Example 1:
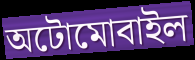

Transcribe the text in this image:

অটোমোবাইল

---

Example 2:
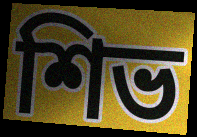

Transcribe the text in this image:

শিভ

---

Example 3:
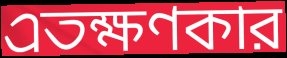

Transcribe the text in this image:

এতক্ষণকার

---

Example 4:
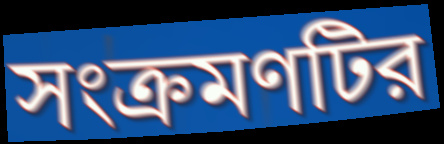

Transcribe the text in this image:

সংক্রমণটির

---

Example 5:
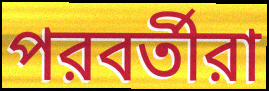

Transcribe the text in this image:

পরবর্তীরা